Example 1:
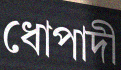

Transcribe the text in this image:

ধোপাদী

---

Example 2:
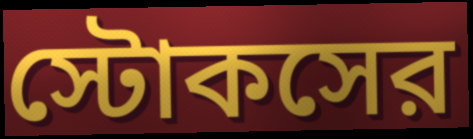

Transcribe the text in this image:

স্টোকসের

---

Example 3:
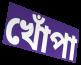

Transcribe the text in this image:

খোঁপা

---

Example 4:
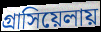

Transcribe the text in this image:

গ্রাসিয়েলায়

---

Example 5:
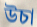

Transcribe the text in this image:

উচা